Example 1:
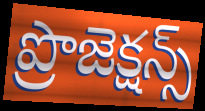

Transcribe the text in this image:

ప్రొజెక్షన్స్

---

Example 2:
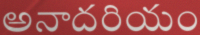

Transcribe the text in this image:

అనాదరియం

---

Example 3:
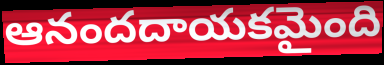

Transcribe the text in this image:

ఆనందదాయకమైంది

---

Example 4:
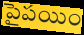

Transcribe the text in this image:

పైపయిం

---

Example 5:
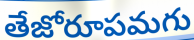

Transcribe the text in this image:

తేజోరూపమగు